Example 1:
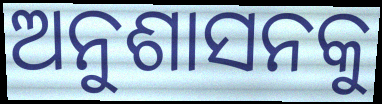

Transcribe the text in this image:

ଅନୁଶାସନକୁ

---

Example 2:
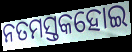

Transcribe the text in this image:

ନତମସ୍ତକହୋଇ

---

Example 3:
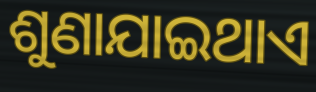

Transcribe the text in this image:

ଶୁଣାଯାଇଥାଏ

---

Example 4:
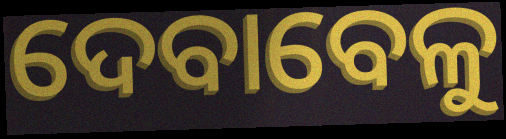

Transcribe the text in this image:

ଦେବାବେଳୁ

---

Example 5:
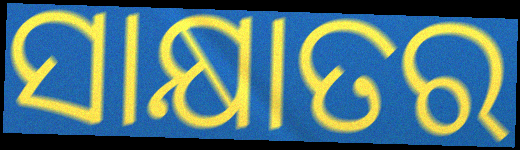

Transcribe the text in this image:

ସାକ୍ଷାତର